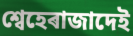
শ্বেহেৰাজাদেই